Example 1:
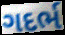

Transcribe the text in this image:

ગદર્ભ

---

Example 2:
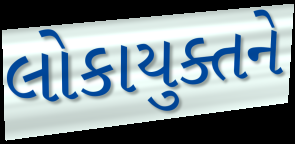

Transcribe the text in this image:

લોકાયુક્તને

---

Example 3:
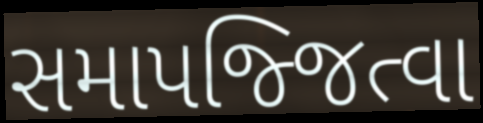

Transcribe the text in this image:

સમાપજ્જિત્વા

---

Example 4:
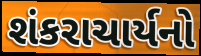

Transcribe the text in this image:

શંકરાચાર્યનો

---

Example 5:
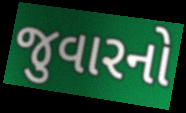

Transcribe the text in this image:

જુવારનો